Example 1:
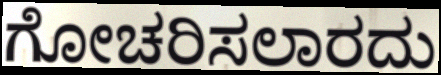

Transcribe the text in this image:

ಗೋಚರಿಸಲಾರದು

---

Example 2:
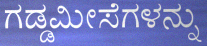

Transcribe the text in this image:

ಗಡ್ಡಮೀಸೆಗಳನ್ನು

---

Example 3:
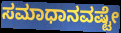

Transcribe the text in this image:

ಸಮಾಧಾನವಷ್ಟೇ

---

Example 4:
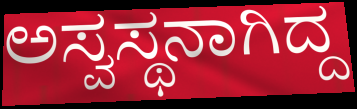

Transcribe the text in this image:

ಅಸ್ವಸ್ಥನಾಗಿದ್ದ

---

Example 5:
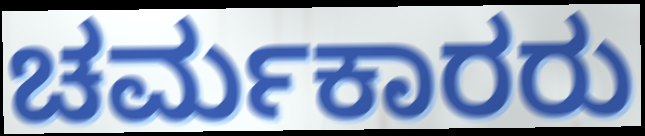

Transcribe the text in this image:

ಚರ್ಮಕಾರರು